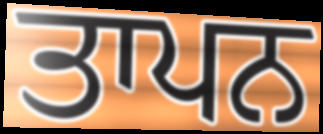
ਤਾਪਨ